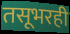
तसूभरही